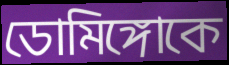
ডোমিঙ্গোকে